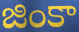
జింకా